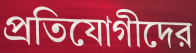
প্রতিযোগীদের